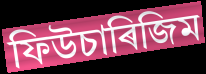
ফিউচাৰিজিম